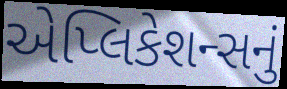
એપ્લિકેશન્સનું